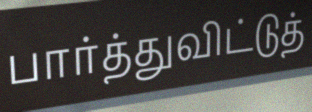
பார்த்துவிட்டுத்